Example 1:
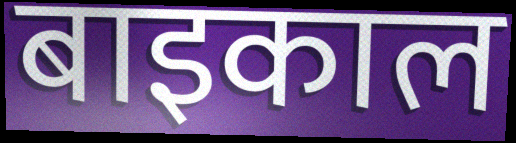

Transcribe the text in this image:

बाइकाल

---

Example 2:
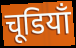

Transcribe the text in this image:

चूडियाँ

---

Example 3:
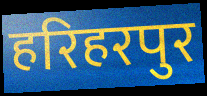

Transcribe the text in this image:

हरिहरपुर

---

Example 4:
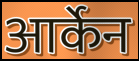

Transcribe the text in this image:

आर्केन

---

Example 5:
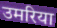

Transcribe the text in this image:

उमरिया